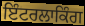
ਇੰਟਰਲਾਕਿੰਗ